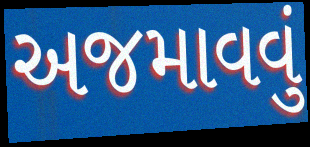
અજમાવવું